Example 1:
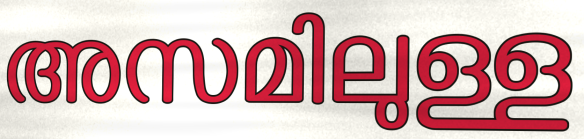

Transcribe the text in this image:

അസമിലുള്ള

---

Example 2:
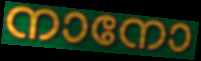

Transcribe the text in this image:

നാനോ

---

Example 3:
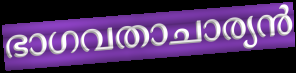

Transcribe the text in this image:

ഭാഗവതാചാര്യൻ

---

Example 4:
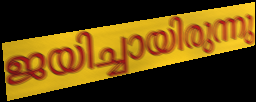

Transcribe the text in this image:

ജയിച്ചായിരുന്നു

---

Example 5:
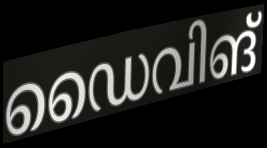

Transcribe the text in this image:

ഡൈവിങ്